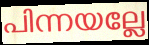
പിന്നയല്ലേ